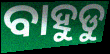
ବାହୁଡୁ